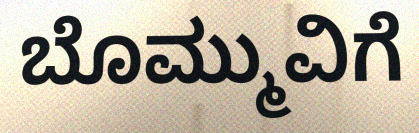
ಬೊಮ್ಮುವಿಗೆ